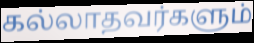
கல்லாதவர்களும்